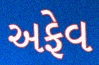
અફેવ